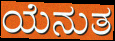
ಯೆನುತ